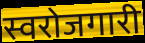
स्वरोजगारी